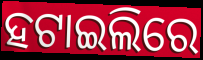
ହଟାଇଲିରେ